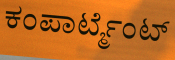
ಕಂಪಾರ್ಟ್ಮೆಂಟ್